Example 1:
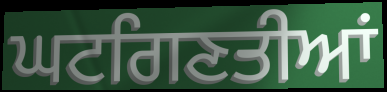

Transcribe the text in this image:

ਘਟਗਿਣਤੀਆਂ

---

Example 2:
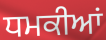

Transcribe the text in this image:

ਧਮਕੀਆਂ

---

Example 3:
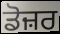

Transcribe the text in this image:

ਡੋਜ਼ਰ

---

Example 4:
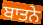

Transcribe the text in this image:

ਬਾਤਨੇ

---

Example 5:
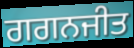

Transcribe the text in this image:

ਗਗਨਜੀਤ